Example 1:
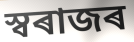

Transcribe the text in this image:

স্বৰাজৰ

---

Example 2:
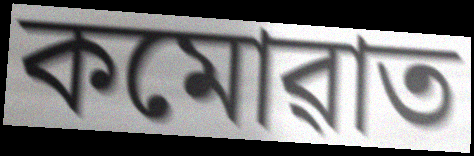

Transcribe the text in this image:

কমোৱাত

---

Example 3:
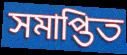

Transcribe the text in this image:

সমাপ্তিত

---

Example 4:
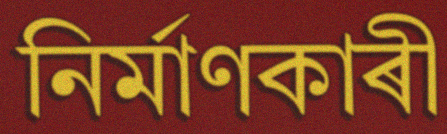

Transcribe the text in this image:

নিৰ্মাণকাৰী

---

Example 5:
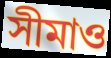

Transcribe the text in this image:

সীমাও